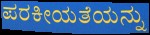
ಪರಕೀಯತೆಯನ್ನು